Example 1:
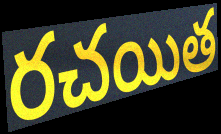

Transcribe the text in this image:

రచయిత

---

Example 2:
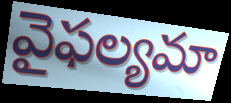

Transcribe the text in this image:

వైఫల్యమా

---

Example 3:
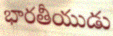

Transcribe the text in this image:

భారతీయుడు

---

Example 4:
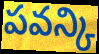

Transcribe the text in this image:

పవన్కి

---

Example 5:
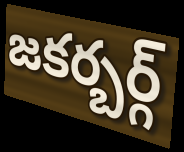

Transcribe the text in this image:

జకర్బర్గ్